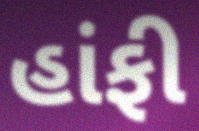
હાંફી